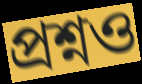
প্রশ্নও